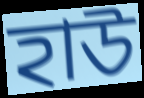
হাউ